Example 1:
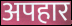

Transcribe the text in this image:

अपहार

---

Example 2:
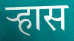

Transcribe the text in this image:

ऱ्हास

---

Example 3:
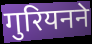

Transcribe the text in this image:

गुरियनने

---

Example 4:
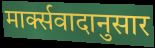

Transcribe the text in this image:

मार्क्सवादानुसार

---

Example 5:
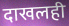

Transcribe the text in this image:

दाखलही